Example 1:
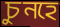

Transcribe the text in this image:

চুনহে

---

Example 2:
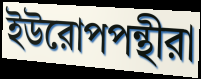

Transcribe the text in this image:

ইউরোপপন্থীরা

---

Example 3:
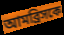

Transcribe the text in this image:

আমব্রিসকে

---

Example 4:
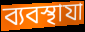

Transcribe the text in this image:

ব্যবস্থাযা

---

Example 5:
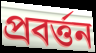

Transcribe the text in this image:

প্রবর্ত্তন